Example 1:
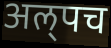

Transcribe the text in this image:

अल्पच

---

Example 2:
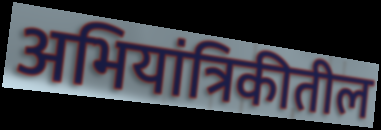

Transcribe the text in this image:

अभियांत्रिकीतील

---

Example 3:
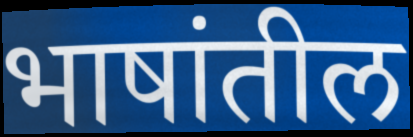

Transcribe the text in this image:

भाषांतील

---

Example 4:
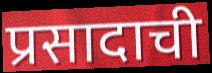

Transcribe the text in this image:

प्रसादाची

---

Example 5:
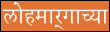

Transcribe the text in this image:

लोहमार्गाच्या